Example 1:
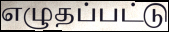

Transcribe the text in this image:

எழுதப்பட்டு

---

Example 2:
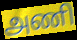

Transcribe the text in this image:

அணி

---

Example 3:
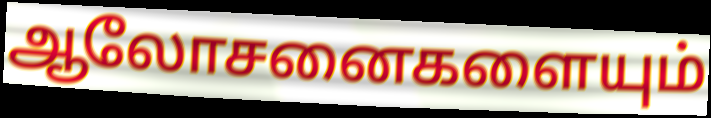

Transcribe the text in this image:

ஆலோசனைகளையும்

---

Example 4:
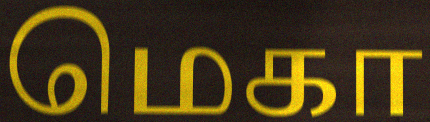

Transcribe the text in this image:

மெகா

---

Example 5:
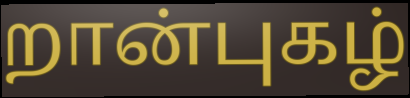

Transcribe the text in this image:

றான்புகழ்